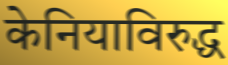
केनियाविरुद्ध